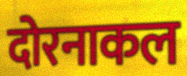
दोरनाकल